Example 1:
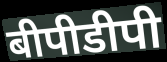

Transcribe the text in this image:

बीपीडीपी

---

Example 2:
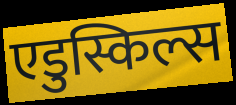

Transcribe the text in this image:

एडुस्किल्स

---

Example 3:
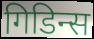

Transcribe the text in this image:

गिडिन्स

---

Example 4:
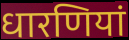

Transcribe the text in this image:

धारणियां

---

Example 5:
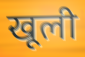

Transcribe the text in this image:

खूली